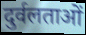
दुर्वलताओं